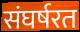
संघर्षरत